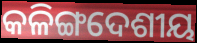
କଳିଙ୍ଗଦେଶୀୟ